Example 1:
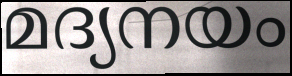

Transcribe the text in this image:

മദ്യനയം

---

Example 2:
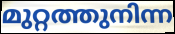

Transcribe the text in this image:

മുറ്റത്തുനിന്ന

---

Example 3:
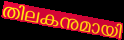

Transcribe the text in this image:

തിലകനുമായി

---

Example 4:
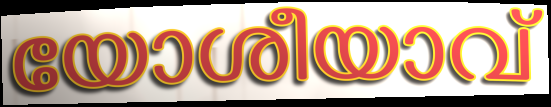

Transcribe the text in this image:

യോശീയാവ്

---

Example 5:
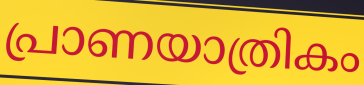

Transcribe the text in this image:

പ്രാണയാത്രികം